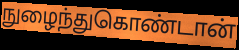
நுழைந்துகொண்டான்